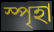
স্পৃহা